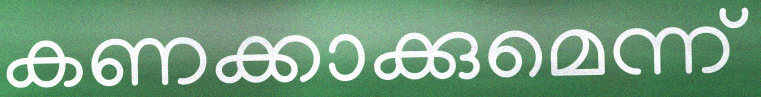
കണക്കാക്കുമെന്ന്